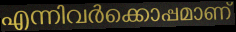
എന്നിവർക്കൊപ്പമാണ്